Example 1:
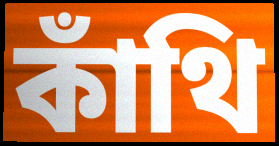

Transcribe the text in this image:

কাঁথি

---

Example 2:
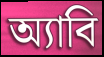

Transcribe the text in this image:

অ্যাবি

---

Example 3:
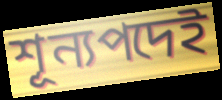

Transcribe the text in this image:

শূন্যপদেই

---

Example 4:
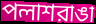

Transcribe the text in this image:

পলাশরাঙা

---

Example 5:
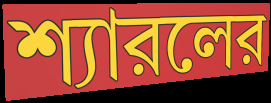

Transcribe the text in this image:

শ্যারলের